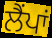
ਲੈਂਪਾਂ